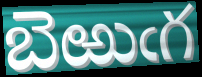
బెఱుఁగ